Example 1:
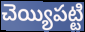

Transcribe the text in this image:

చెయ్యిపట్టి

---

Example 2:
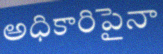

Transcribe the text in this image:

అధికారిపైనా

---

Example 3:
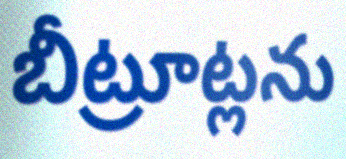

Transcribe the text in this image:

బీట్రూట్లను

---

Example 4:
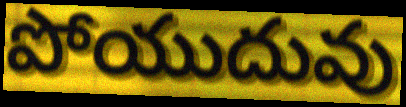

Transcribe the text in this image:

పోయుదువు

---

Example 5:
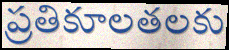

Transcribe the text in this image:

ప్రతికూలతలకు